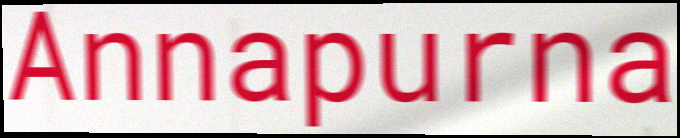
Annapurna